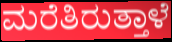
ಮರೆತಿರುತ್ತಾಳೆ